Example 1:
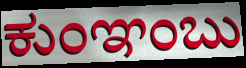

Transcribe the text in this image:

ಕುಂಞಂಬು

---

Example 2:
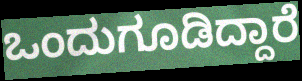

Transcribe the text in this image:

ಒಂದುಗೂಡಿದ್ದಾರೆ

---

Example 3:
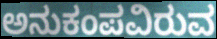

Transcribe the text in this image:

ಅನುಕಂಪವಿರುವ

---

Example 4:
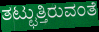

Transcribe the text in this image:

ತಟ್ಟುತ್ತಿರುವಂತೆ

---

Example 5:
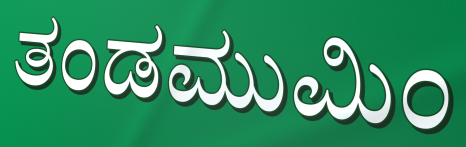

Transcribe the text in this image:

ತಂಡಮುಮಿಂ